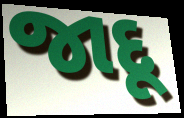
જાદૂ